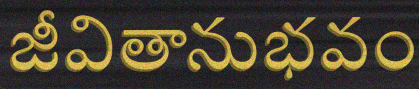
జీవితానుభవం